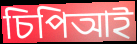
চিপিআই